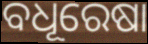
ବଧୂରେଷା